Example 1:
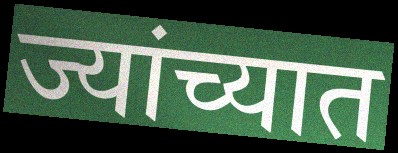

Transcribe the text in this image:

ज्यांच्यात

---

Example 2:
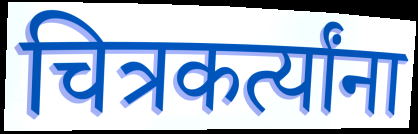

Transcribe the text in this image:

चित्रकर्त्यांना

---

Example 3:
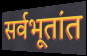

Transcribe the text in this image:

सर्वभूतांत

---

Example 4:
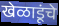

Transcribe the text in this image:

खेळाडूंचे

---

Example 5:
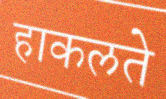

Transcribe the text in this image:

हाकलते